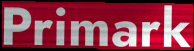
Primark